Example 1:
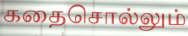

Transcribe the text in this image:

கதைசொல்லும்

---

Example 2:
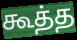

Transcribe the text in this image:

கூத்த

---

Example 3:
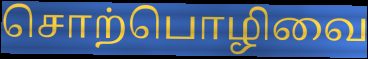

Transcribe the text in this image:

சொற்பொழிவை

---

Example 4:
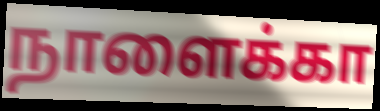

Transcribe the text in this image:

நாளைக்கா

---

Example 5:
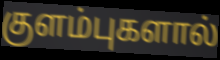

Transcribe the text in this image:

குளம்புகளால்